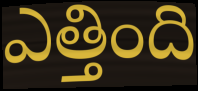
ఎత్తింది